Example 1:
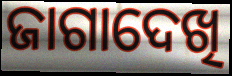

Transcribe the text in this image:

ଜାଗାଦେଖି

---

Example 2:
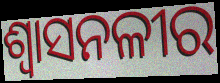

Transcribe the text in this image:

ଶ୍ୱାସନଳୀର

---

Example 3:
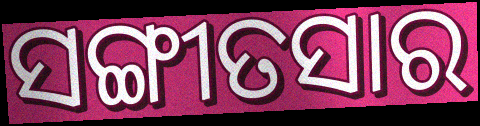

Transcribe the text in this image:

ସଙ୍ଗୀତସାର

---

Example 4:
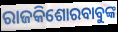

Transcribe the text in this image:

ରାଜକିଶୋରବାବୁଙ୍କ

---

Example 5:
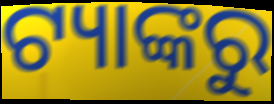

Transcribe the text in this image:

ଟ୍ୟାଙ୍କରୁ